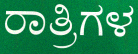
ರಾತ್ರಿಗಳ